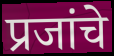
प्रजांचे